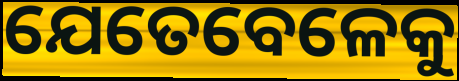
ଯେତେବେଳେକୁ